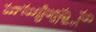
మాన్యుస్క్రిప్ట్లను